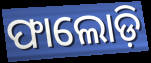
ଫାଲୋଡ଼ି